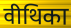
वीथिका